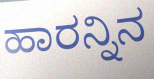
ಹಾರನ್ನಿನ